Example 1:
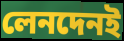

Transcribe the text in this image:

লেনদেনই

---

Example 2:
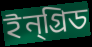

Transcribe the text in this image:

ইন্‌গ্রিড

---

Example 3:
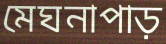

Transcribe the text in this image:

মেঘনাপাড়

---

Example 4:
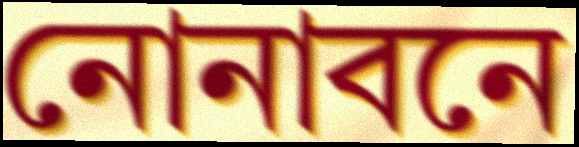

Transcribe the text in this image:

নোনাবনে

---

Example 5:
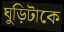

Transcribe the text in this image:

ঘুড়িটাকে